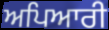
ਅਪਿਆਰੀ